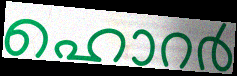
ഹൊറർ